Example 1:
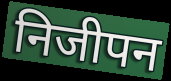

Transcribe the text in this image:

निजीपन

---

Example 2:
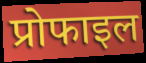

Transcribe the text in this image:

प्रोफाइल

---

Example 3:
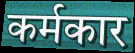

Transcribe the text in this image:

कर्मकार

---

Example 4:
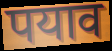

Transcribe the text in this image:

पयाव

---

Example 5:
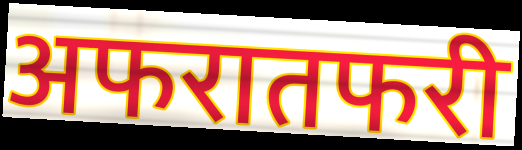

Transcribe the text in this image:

अफरातफरी